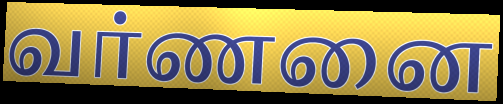
வர்ணனை